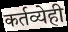
कर्तव्येही